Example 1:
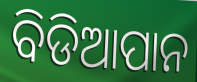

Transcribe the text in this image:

ବିଡିଆପାନ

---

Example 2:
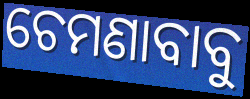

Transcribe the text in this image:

ଚେମଣାବାବୁ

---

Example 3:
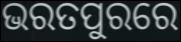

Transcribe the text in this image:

ଭରତପୁରରେ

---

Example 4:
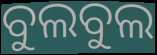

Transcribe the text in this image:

ବୁଲବୁଲ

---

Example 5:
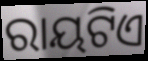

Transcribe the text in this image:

ରାୟଟିଏ